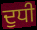
ਦੁਧੀ